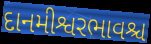
દાનમીશ્વરભાવશ્ચ